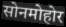
सोनमोहोर